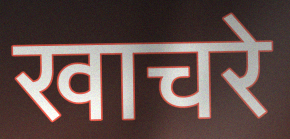
खाचरे